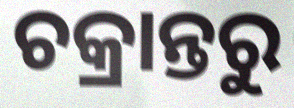
ଚକ୍ରାନ୍ତରୁ